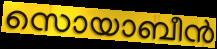
സൊയാബീൻ